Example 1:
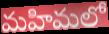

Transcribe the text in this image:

మహిమలో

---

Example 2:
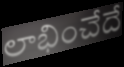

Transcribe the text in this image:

లాభించేదే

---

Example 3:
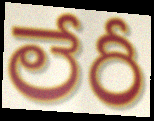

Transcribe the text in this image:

లేరీ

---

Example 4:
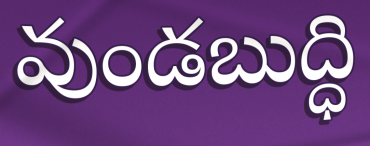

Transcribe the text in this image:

వుండబుద్ధి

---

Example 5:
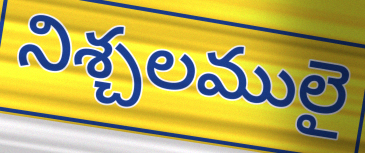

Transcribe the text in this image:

నిశ్చలములై